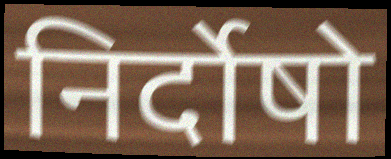
निर्दोषो